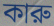
কারু